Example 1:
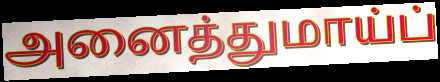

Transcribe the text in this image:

அனைத்துமாய்ப்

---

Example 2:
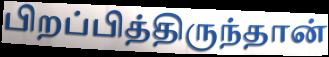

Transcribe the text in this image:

பிறப்பித்திருந்தான்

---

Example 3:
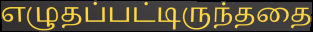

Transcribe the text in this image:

எழுதப்பட்டிருந்ததை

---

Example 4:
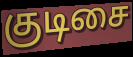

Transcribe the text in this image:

குடிசை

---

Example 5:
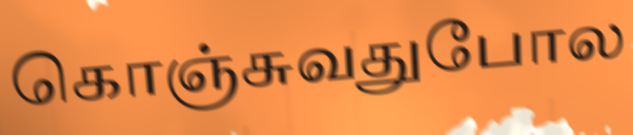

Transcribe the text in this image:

கொஞ்சுவதுபோல